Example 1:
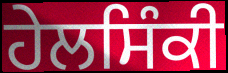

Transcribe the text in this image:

ਹੇਲਸਿੰਕੀ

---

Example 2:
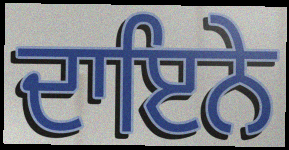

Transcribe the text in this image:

ਦਾਇਨੇ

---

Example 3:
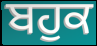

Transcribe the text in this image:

ਬਹੁਕ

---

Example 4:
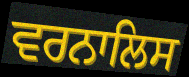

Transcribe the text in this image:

ਵਰਨਾਲਿਸ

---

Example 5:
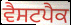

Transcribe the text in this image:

ਵੈਸਟਪੈਕ